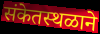
संकेतस्थळाने